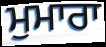
ਮੁਮਾਰਾ